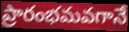
ప్రారంభమవగానే